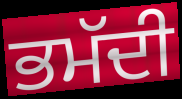
ਭਮੱਦੀ